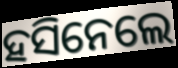
ହସିନେଲେ